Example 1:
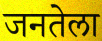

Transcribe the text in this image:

जनतेला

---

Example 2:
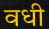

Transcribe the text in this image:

वधी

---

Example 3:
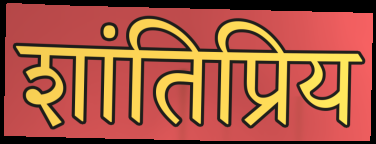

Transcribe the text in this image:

शांतिप्रिय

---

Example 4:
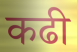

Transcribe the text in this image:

कढी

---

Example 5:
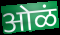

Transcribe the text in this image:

ओळं